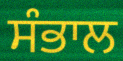
ਸੰਭਾਲ